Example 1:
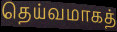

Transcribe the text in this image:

தெய்வமாகத்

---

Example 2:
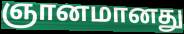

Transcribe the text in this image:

ஞானமானது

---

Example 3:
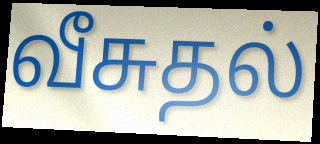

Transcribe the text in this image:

வீசுதல்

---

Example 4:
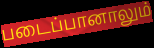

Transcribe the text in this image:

படைப்பானாலும்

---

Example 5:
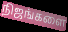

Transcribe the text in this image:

நிஜங்களை